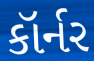
કૉર્નર